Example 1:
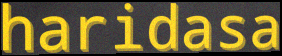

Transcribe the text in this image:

haridasa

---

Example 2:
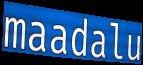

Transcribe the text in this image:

maadalu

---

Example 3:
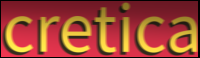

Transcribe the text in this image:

cretica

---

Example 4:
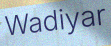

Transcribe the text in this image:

Wadiyar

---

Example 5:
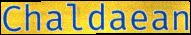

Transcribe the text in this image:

Chaldaean